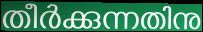
തീർക്കുന്നതിനു